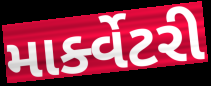
માર્ક્વેટરી